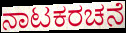
ನಾಟಕರಚನೆ